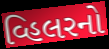
વ્હિલરનો